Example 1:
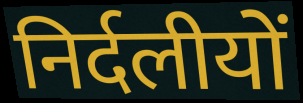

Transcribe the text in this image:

निर्दलीयों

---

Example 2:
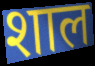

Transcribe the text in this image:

शाल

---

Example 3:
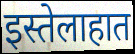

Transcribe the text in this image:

इस्तेलाहात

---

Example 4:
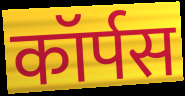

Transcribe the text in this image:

कॉर्पस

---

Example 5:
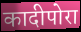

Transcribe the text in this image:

कादीपोरा